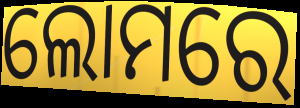
ଲୋମରେ